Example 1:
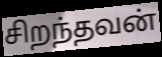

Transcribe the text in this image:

சிறந்தவன்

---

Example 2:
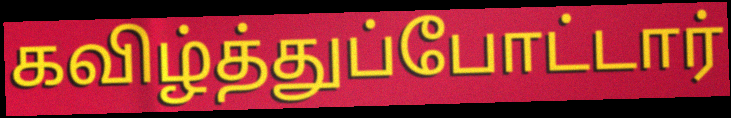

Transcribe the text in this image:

கவிழ்த்துப்போட்டார்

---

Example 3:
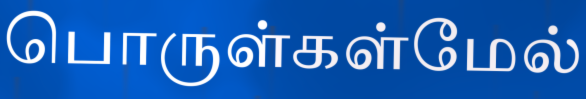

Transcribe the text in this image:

பொருள்கள்மேல்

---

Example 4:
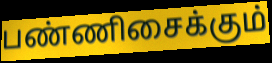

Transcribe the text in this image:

பண்ணிசைக்கும்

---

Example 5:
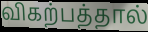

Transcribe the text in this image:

விகற்பத்தால்